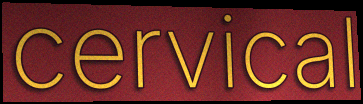
cervical